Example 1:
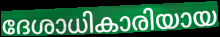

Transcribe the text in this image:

ദേശാധികാരിയായ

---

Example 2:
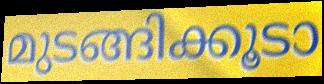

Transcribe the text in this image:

മുടങ്ങിക്കൂടാ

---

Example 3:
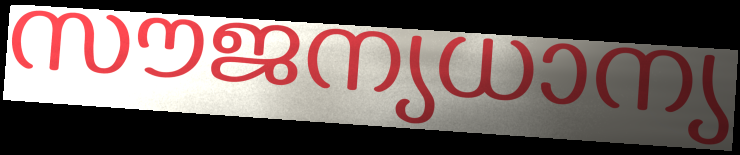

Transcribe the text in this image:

സൗജന്യധാന്യ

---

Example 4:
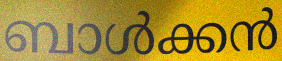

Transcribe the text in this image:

ബാൾക്കൻ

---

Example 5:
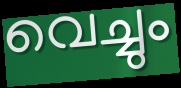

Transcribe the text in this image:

വെച്ചും